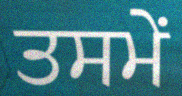
ਤਸਮੇਂ